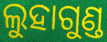
ଲୁହାଗୁଣ୍ଡ